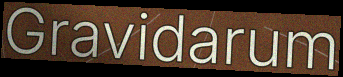
Gravidarum